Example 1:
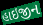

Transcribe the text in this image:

હાઇજીન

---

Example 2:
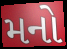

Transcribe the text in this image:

મનો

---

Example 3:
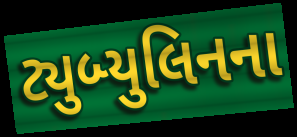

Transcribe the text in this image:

ટ્યુબ્યુલિનના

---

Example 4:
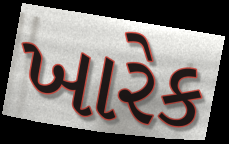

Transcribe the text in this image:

ખારેક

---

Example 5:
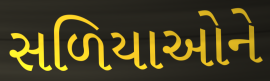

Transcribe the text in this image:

સળિયાઓને